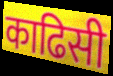
काढिसी